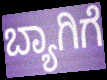
ಬ್ಯಾಗಿಗೆ